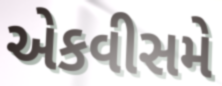
એકવીસમે